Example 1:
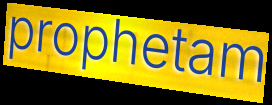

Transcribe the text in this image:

prophetam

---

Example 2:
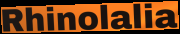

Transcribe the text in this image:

Rhinolalia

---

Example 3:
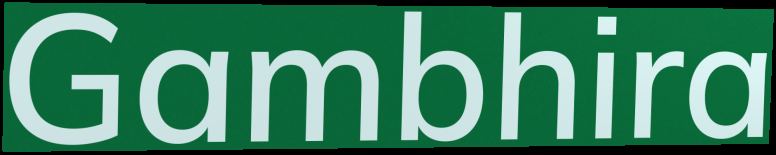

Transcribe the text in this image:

Gambhira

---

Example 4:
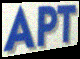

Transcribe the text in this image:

APT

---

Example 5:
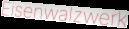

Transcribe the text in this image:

Eisenwalzwerk